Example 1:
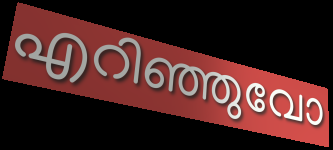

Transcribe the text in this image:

എറിഞ്ഞുവോ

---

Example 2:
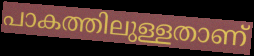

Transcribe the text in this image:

പാകത്തിലുള്ളതാണ്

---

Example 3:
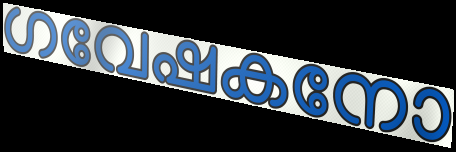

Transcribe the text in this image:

ഗവേഷകനോ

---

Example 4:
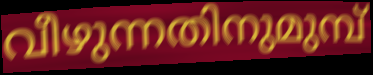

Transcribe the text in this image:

വീഴുന്നതിനുമുമ്പ്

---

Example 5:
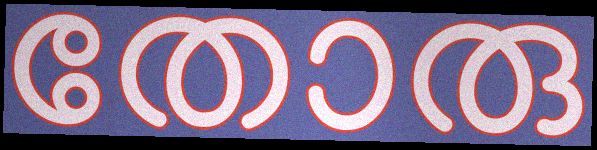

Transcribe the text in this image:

തോരു